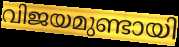
വിജയമുണ്ടായി